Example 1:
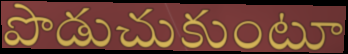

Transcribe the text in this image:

పొడుచుకుంటూ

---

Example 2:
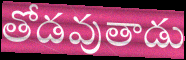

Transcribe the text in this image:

తోడవుతాడు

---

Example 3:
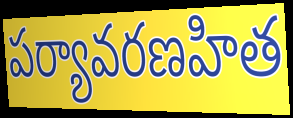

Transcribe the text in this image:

పర్యావరణహిత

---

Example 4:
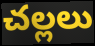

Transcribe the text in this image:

చల్లలు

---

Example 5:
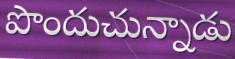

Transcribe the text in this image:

పొందుచున్నాడు